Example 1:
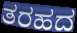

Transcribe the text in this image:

ತರಹದ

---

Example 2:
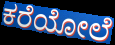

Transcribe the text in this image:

ಕರೆಯೋಲೆ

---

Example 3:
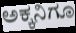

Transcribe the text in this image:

ಅಕ್ಕನಿಗೂ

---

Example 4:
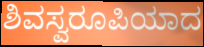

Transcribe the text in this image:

ಶಿವಸ್ವರೂಪಿಯಾದ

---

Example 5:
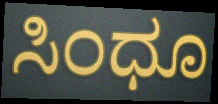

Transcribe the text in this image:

ಸಿಂಧೂ